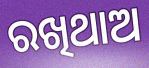
ରଖିଥାଅ